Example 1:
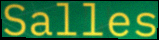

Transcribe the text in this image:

Salles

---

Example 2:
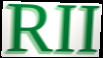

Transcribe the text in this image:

RII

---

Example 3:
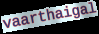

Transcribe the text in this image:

vaarthaigal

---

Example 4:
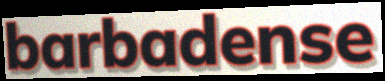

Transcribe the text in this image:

barbadense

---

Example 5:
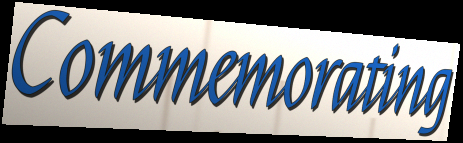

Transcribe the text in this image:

Commemorating